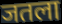
जतला